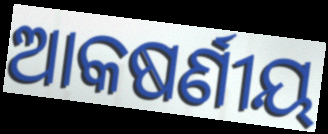
ଆକଷର୍ଣୀୟ